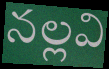
నల్లవి